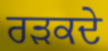
ਰੜਕਦੇ